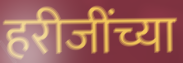
हरीजींच्या